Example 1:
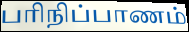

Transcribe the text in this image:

பரிநிப்பாணம்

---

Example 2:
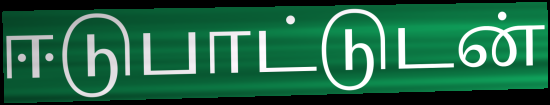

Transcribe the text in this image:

ஈடுபாட்டுடன்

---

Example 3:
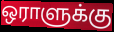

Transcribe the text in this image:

ஒராளுக்கு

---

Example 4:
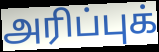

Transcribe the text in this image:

அரிப்புக்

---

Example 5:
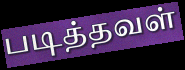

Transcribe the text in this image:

படித்தவள்